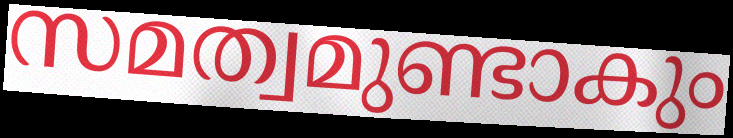
സമത്വമുണ്ടാകും